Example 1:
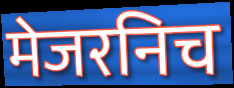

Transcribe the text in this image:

मेजरनिच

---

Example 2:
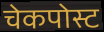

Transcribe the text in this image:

चेकपोस्ट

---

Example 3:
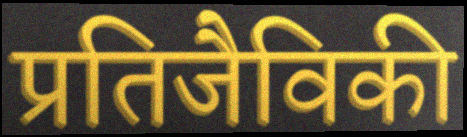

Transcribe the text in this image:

प्रतिजैविकी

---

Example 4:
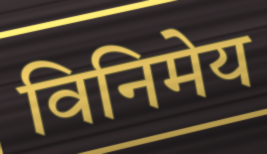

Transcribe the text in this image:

विनिमेय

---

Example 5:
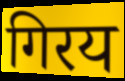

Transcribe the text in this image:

गिरय